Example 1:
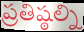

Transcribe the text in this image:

ప్రతిష్ఠల్ని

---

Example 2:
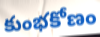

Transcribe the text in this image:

కుంభకోణం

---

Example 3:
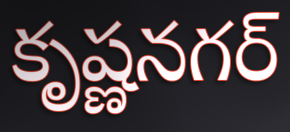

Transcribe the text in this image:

కృష్ణనగర్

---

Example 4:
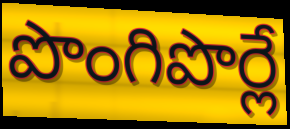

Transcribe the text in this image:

పొంగిపొర్లే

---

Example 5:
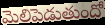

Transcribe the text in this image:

మెలిపెడుతుందో